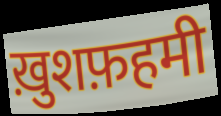
ख़ुशफ़हमी